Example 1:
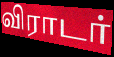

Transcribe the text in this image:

விராடர்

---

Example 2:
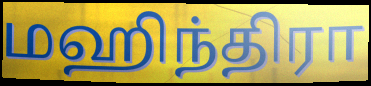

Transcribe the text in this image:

மஹிந்திரா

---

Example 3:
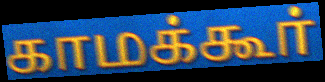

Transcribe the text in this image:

காமக்கூர்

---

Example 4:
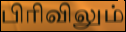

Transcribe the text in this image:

பிரிவிலும்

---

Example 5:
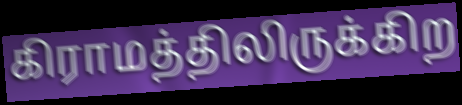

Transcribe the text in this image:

கிராமத்திலிருக்கிற